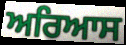
ਅਰਿਆਸ